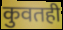
कुवतही